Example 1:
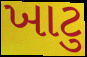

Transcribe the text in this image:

ખાટુ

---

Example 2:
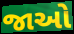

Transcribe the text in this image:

જાઓ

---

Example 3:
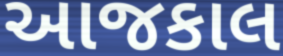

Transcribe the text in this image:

આજકાલ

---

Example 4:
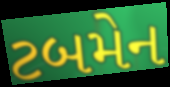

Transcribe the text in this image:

ટબમેન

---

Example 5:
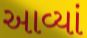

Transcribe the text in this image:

આવ્યાં